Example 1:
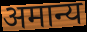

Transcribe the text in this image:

अमान्य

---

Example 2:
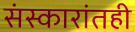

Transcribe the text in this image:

संस्कारांतही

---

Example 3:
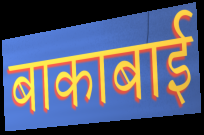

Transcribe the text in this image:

बाकाबाई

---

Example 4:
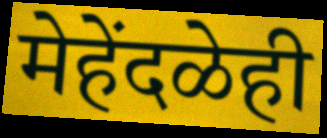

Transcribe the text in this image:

मेहेंदळेही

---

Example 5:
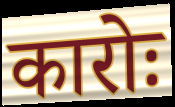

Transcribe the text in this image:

कारोः